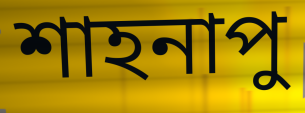
শাহনাপু